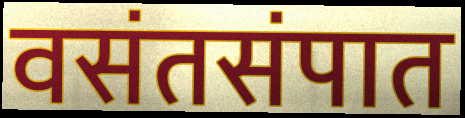
वसंतसंपात